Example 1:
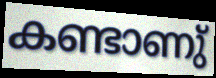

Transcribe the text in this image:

കണ്ടാണു്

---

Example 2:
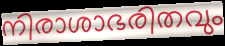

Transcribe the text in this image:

നിരാശാഭരിതവും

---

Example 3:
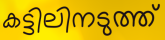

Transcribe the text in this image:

കട്ടിലിനടുത്ത്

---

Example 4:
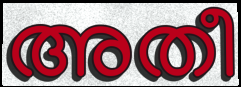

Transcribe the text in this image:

അതീ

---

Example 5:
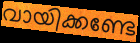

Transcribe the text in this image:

വായിക്കണ്ടേ